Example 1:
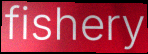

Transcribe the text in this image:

fishery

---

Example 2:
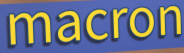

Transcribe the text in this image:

macron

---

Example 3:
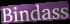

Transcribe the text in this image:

Bindass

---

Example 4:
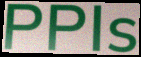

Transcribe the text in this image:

PPIs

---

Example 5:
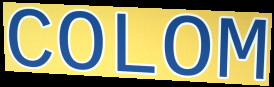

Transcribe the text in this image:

COLOM